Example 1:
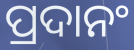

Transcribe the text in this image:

ପ୍ରଦାନଂ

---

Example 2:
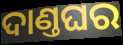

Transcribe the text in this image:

ଦାଣ୍ତଘର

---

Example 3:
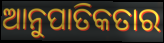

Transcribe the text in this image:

ଆନୁପାତିକତାର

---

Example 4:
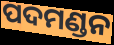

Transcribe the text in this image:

ପଦମଣ୍ଡନ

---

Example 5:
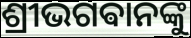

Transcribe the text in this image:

ଶ୍ରୀଭଗଵାନଙ୍କୁ